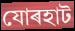
যোৰহাট